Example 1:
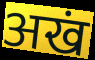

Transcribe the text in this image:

अखं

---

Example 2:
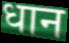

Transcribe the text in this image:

धान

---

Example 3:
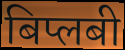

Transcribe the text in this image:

बिप्लबी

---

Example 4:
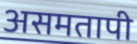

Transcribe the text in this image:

असमतापी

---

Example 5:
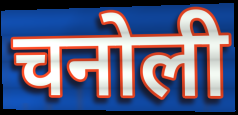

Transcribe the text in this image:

चनोली